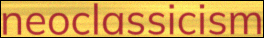
neoclassicism